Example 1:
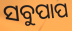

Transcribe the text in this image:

ସବୁପାପ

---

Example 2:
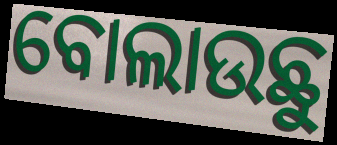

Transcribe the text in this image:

ବୋଲାଉଛୁ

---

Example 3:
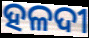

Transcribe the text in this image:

ହଳଦୀ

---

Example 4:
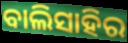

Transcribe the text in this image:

ବାଲିସାହିର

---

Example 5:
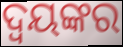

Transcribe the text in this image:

ଦ୍ବୟଙ୍କର